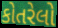
કોતરેલો